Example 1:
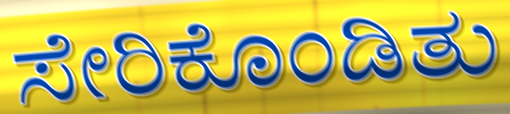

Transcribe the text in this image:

ಸೇರಿಕೊಂಡಿತು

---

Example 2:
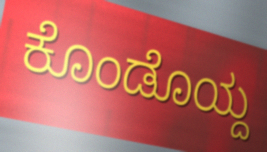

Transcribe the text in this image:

ಕೊಂಡೊಯ್ದ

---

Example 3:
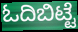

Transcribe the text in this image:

ಓದಿಬಿಟ್ಟೆ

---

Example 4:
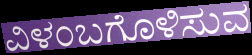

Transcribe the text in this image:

ವಿಳಂಬಗೊಳಿಸುವ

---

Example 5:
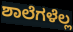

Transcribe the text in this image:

ಶಾಲೆಗಳೆಲ್ಲ